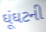
ઘૂંઘટની